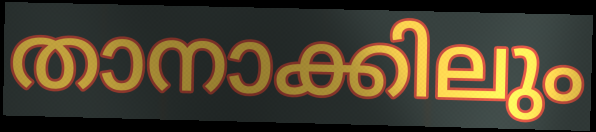
താനാക്കിലും